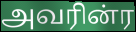
அவரின்ர